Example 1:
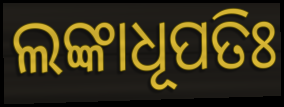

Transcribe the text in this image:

ଲଙ୍କାଧୂପତିଃ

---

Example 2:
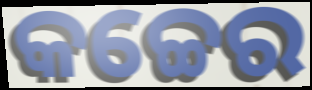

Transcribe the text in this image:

କଚ୍ଚେର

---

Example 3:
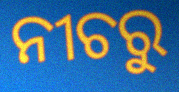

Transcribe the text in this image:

ନୀଚରୁ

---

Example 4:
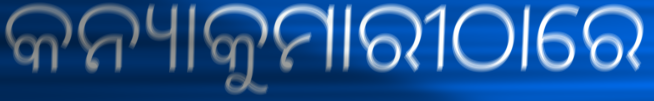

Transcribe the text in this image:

କନ୍ୟାକୁମାରୀଠାରେ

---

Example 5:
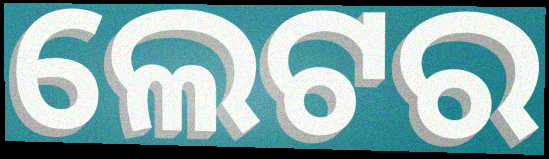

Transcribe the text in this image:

ଲେଟର